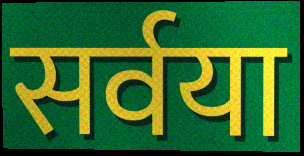
सर्वया